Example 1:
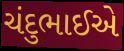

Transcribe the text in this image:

ચંદુભાઈએ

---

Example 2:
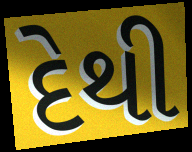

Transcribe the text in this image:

દેથી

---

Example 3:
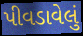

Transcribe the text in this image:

પીવડાવેલું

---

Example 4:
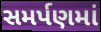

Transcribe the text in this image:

સમર્પણમાં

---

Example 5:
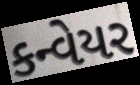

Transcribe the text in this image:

કન્વેયર